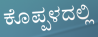
ಕೊಪ್ಪಳದಲ್ಲಿ